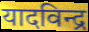
यादविन्द्र